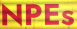
NPEs